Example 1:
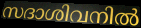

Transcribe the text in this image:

സദാശിവനിൽ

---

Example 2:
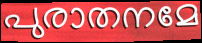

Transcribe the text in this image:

പുരാതനമേ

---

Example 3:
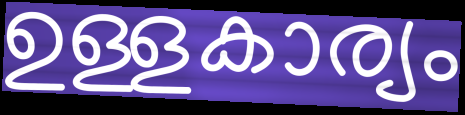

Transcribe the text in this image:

ഉള്ളകാര്യം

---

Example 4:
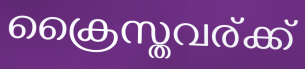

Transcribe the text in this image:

ക്രൈസ്തവര്ക്ക്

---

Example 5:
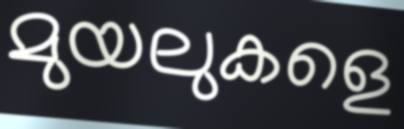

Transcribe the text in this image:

മുയലുകളെ